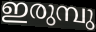
ഇരുമ്പു